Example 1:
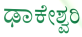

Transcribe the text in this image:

ಢಾಕೇಶ್ವರಿ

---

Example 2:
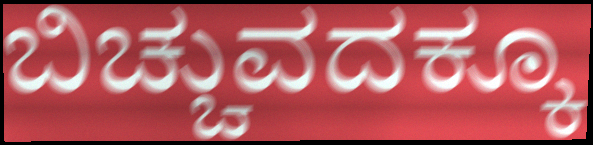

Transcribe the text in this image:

ಬಿಚ್ಚುವದಕ್ಕೂ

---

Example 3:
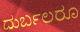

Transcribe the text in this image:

ದುರ್ಬಲರೂ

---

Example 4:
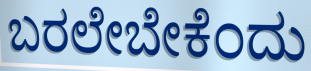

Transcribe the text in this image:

ಬರಲೇಬೇಕೆಂದು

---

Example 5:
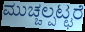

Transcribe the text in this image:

ಮುಚ್ಚಲ್ಪಟ್ಟರೆ